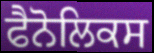
ਫੈਨੋਲਿਕਸ